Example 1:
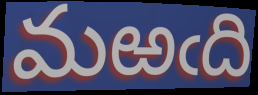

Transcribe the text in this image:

మఱఁది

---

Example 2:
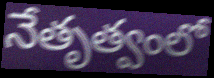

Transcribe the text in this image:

నేతృత్వంలో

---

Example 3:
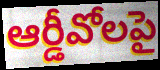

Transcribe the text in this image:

ఆర్డీవోలపై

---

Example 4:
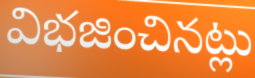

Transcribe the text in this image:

విభజించినట్లు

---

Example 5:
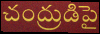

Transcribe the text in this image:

చంద్రుడిపై